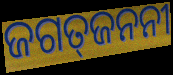
ଜଗତ୍‍ଜନନୀ